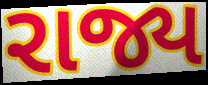
રાજ્ય